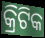
କ୍ରିଟିକ